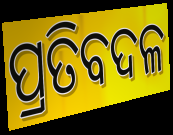
ପ୍ରତିବଦଳ